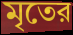
মৃতের